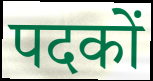
पदकों